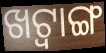
ଖଟ୍ଵାଙ୍ଗ